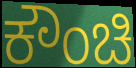
ಕೌಂಚಿ